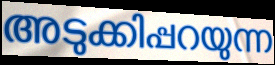
അടുക്കിപ്പറയുന്ന